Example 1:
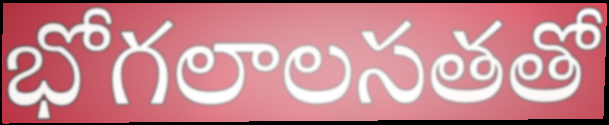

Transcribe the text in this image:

భోగలాలసతతో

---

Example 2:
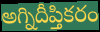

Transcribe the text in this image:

అగ్నిదీప్తికరం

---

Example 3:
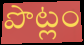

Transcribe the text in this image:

పొట్లం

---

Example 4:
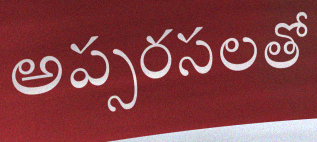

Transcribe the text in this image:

అప్సరసలతో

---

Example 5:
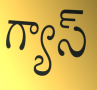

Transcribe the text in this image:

గ్యాస్